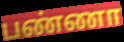
பண்ணா